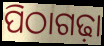
ପିଠାଗଢ଼ା